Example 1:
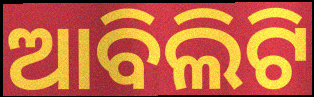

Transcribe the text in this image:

ଆବିଲିଟି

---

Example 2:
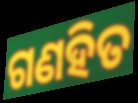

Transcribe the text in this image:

ଗଣହିତ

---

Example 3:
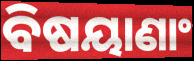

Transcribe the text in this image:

ବିଷୟାଣାଂ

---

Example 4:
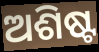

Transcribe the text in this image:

ଅଶିଷ୍ଟ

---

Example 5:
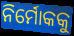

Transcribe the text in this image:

ନିର୍ମୋକକୁ